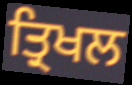
ਤ੍ਰਿਖਲ